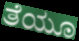
ತೆಯೂ